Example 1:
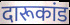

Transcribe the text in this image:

दारूकांड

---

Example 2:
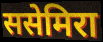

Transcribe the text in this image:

ससेमिरा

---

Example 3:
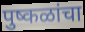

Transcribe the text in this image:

पुष्कळांचा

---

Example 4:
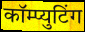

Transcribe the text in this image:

कॉम्प्युटिंग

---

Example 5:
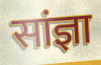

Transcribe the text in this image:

सांज्ञा